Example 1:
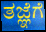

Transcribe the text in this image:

ತಜ್ಞೆಗೆ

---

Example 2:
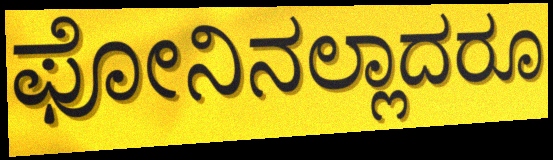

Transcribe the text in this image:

ಫೋನಿನಲ್ಲಾದರೂ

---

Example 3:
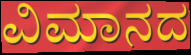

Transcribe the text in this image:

ವಿಮಾನದ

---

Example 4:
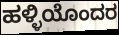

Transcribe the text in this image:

ಹಳ್ಳಿಯೊಂದರ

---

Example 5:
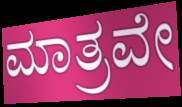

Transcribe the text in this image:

ಮಾತ್ರವೇ